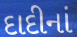
દાદીનાં